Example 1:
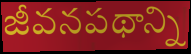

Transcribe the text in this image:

జీవనపథాన్ని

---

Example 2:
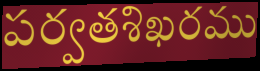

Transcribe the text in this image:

పర్వతశిఖరము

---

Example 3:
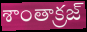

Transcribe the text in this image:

శాంతాక్రజ్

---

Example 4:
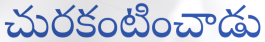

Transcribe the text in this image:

చురకంటించాడు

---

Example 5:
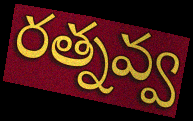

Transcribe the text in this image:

రత్నవ్వ